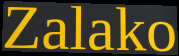
Zalako